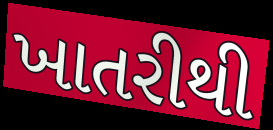
ખાતરીથી